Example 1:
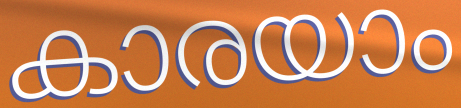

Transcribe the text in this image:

കാരയാം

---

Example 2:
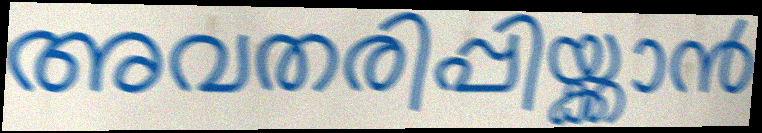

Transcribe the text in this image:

അവതരിപ്പിയ്ക്കാൻ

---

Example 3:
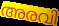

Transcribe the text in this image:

അരവി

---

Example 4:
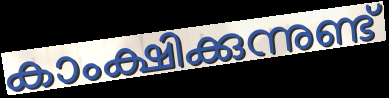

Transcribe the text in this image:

കാംക്ഷിക്കുന്നുണ്ട്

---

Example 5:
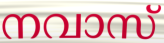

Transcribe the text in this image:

നവാസ്